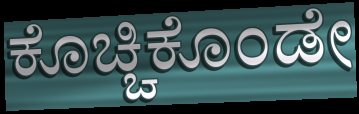
ಕೊಚ್ಚಿಕೊಂಡೇ